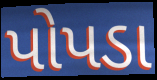
પોપડા